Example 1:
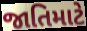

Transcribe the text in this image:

જાતિમાટે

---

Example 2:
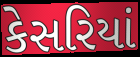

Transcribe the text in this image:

કેસરિયાં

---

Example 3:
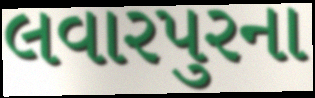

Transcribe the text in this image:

લવારપુરના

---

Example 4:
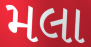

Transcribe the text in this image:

મલા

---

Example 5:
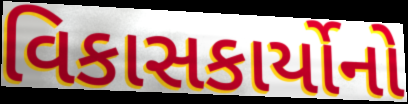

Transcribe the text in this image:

વિકાસકાર્યોનો